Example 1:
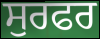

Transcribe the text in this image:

ਸੁਰਫਰ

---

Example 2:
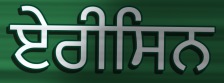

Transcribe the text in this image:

ਏਰੀਸਿਨ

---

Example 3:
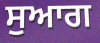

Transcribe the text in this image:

ਸੁਆਗ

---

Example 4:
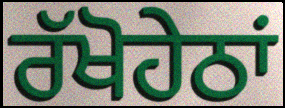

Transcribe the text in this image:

ਰੱਖੋਹੇਠਾਂ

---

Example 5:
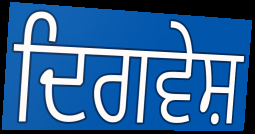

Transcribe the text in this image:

ਦਿਗਵੇਸ਼